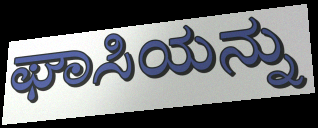
ಘಾಸಿಯನ್ನು